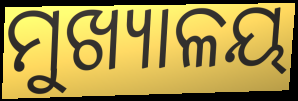
ମୁଖ୍ୟାଳୟ